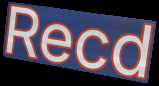
Recd